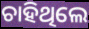
ଚାହିଥିଲେ